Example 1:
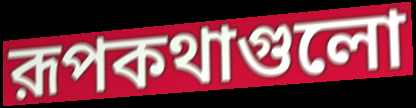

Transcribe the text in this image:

রূপকথাগুলো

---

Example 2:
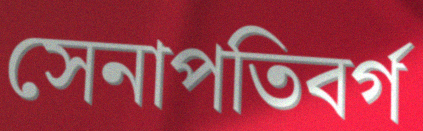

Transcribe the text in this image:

সেনাপতিবর্গ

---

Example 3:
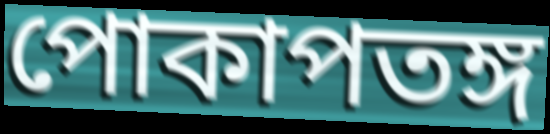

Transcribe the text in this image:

পোকাপতঙ্গ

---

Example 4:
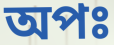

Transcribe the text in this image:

অপঃ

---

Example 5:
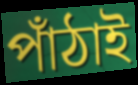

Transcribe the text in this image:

পাঁঠাই